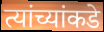
त्यांच्यांकडे